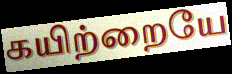
கயிற்றையே